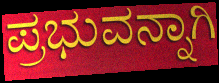
ಪ್ರಭುವನ್ನಾಗಿ